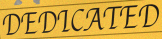
DEDICATED